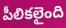
పీలికలైంది